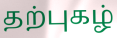
தற்புகழ்